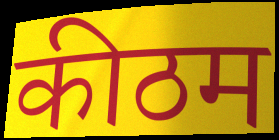
कीठम